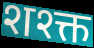
शश्क्त